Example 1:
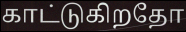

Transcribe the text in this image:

காட்டுகிறதோ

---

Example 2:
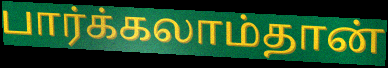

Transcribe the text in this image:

பார்க்கலாம்தான்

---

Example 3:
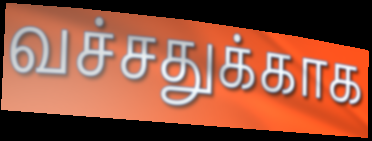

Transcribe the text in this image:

வச்சதுக்காக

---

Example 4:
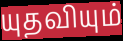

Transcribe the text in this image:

யுதவியும்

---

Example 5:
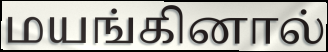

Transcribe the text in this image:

மயங்கினால்